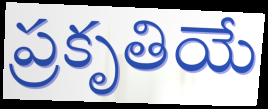
ప్రకృతియే